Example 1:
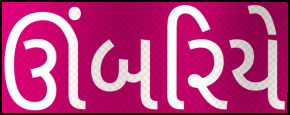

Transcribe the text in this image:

ઊંબરિયે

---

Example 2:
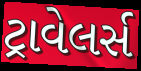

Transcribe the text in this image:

ટ્રાવેલર્સ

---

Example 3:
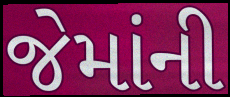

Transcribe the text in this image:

જેમાંની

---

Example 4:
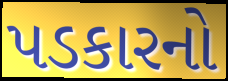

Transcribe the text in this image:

પડકારનો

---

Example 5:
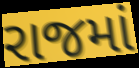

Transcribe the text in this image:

રાજમાં